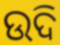
ଉଦି